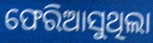
ଫେରିଆସୁଥିଲା